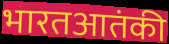
भारतआतंकी